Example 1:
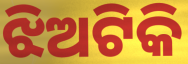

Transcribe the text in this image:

ଝିଅଟିକି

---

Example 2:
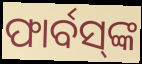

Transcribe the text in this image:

ଫାର୍ବସ୍‌ଙ୍କ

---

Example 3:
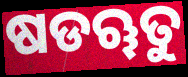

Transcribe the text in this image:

ଷଡୠତୁ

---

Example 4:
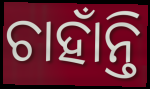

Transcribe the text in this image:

ଚାହାଁନ୍ତି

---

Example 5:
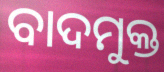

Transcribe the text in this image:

ବାଦମୁକ୍ତ